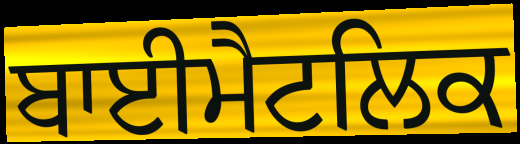
ਬਾਈਮੈਟਲਿਕ